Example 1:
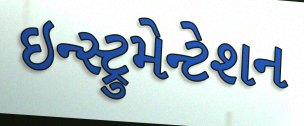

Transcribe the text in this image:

ઇન્સ્ટ્રુમેન્ટેશન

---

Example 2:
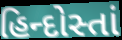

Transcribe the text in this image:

હિન્દોસ્તાં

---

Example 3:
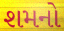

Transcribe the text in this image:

શમનો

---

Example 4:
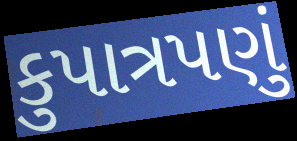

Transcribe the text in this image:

કુપાત્રપણું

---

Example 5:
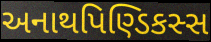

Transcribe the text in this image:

અનાથપિણ્ડિકસ્સ